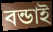
বন্ডাই